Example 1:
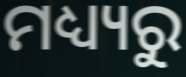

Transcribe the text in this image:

ମଧ୍ୟ୍ୟରୁ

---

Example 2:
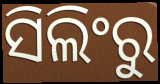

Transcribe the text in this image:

ସିଲିଂରୁ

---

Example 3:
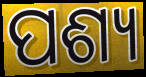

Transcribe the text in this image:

ପଶ୍ୟ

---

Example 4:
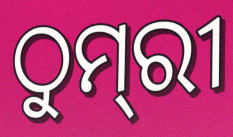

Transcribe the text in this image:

ଠୁମ୍‌ରୀ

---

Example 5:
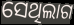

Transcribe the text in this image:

ସେଥିଲାଗ